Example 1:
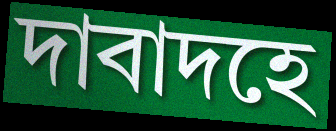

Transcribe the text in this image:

দাবাদহে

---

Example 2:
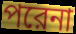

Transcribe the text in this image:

পরেনা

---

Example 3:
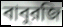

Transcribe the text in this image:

বাবুরজি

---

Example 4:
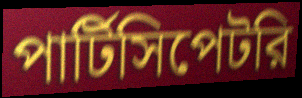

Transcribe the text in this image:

পার্টিসিপেটরি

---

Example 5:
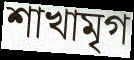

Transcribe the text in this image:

শাখামৃগ